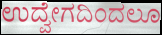
ಉದ್ವೇಗದಿಂದಲೂ